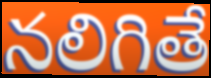
నలిగితే